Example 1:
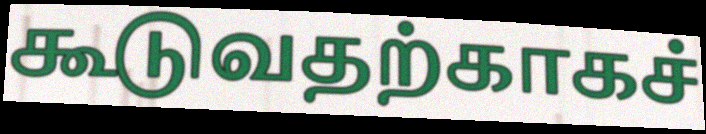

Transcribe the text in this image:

கூடுவதற்காகச்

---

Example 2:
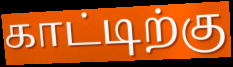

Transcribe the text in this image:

காட்டிற்கு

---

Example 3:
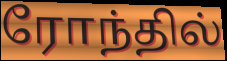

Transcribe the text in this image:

ரோந்தில்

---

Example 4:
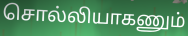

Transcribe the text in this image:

சொல்லியாகணும்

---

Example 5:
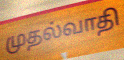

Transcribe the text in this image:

முதல்வாதி